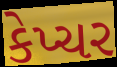
કેપ્ચર